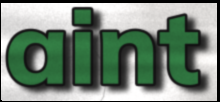
aint